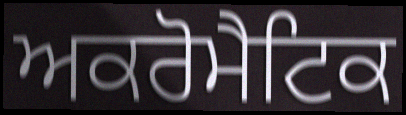
ਅਕਰੋਮੈਟਿਕ